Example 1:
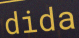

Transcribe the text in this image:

dida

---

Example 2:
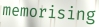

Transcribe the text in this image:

memorising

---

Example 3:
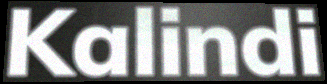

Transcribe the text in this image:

Kalindi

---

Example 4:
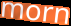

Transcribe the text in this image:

morn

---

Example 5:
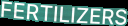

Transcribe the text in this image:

FERTILIZERS